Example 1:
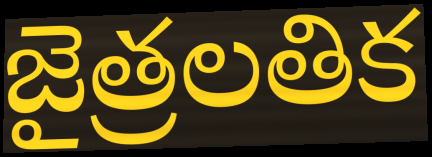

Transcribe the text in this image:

జైత్రలతిక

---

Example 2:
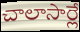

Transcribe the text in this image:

చాలాసార్లే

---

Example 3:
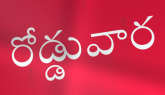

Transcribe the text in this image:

రోడ్డువార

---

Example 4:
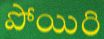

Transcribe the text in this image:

పోయిరి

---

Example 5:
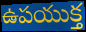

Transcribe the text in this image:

ఉపయుక్త